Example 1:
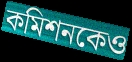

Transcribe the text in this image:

কমিশনকেও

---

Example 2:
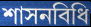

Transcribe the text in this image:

শাসনবিধি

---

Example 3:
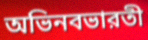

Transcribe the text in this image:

অভিনবভারতী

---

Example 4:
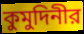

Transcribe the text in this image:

কুমুদিনীর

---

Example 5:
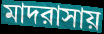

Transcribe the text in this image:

মাদরাসায়